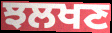
ਝਲਖਣ